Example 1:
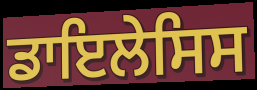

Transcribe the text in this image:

ਡਾਇਲੇਸਿਸ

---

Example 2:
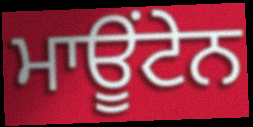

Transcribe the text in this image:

ਮਾਊਂਟੇਨ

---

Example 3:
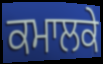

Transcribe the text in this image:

ਕਮਾਲਕੇ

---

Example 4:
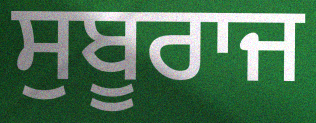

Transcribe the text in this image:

ਸੁਬੂਰਾਜ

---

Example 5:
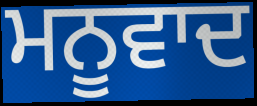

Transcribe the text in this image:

ਮਨੂਵਾਦ